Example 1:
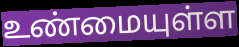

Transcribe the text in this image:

உண்மையுள்ள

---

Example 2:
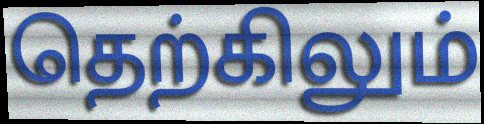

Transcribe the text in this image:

தெற்கிலும்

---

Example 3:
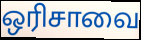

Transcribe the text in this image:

ஒரிசாவை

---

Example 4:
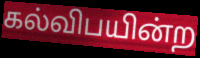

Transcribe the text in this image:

கல்விபயின்ற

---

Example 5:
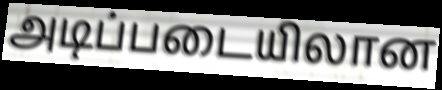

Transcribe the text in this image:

அடிப்படையிலான